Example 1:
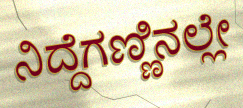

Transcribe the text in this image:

ನಿದ್ದೆಗಣ್ಣಿನಲ್ಲೇ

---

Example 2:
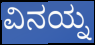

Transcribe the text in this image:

ವಿನಯ್ನ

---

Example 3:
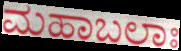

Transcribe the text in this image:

ಮಹಾಬಲಾಃ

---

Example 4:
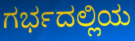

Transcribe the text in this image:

ಗರ್ಭದಲ್ಲಿಯ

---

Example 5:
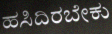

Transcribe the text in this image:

ಹಸಿದಿರಬೇಕು